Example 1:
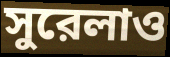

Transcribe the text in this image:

সুরেলাও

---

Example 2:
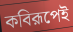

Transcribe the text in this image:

কবিরূপেই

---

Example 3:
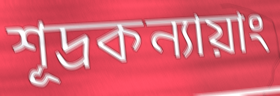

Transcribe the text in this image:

শূদ্রকন্যায়াং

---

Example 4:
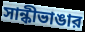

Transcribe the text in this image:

সান্কীভাঙার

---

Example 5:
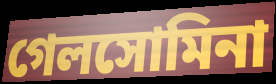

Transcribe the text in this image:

গেলসোমিনা